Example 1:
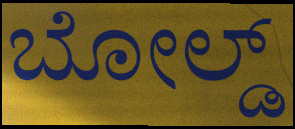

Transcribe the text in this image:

ಬೋಲ್ಡ್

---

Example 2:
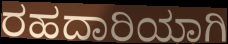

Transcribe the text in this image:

ರಹದಾರಿಯಾಗಿ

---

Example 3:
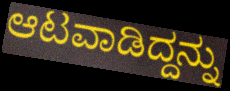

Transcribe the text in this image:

ಆಟವಾಡಿದ್ದನ್ನು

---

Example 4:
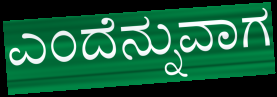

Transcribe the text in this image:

ಎಂದೆನ್ನುವಾಗ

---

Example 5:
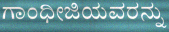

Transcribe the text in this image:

ಗಾಂಧೀಜಿಯವರನ್ನು